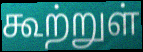
கூற்றுள்